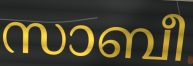
സാബീ